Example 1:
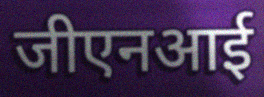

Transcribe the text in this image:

जीएनआई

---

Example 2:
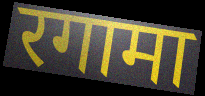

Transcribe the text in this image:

रगामा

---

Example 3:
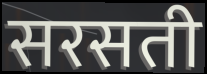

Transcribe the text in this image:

सरसती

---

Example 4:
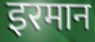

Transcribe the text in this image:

इरमान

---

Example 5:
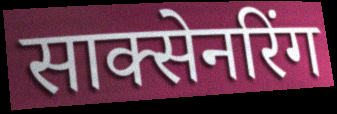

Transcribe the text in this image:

साक्सेनरिंग